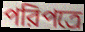
পরিপত্রে